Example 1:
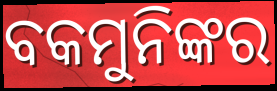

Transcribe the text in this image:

ବକମୁନିଙ୍କର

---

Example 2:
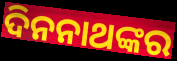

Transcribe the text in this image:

ଦିନନାଥଙ୍କର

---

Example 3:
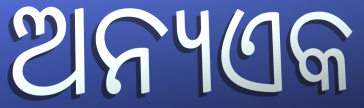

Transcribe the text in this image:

ଅନ୍ୟଏକ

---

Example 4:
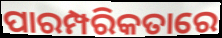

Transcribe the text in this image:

ପାରମ୍ପରିକତାରେ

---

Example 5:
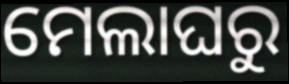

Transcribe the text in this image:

ମେଲାଘରୁ